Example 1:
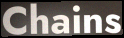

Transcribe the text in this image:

Chains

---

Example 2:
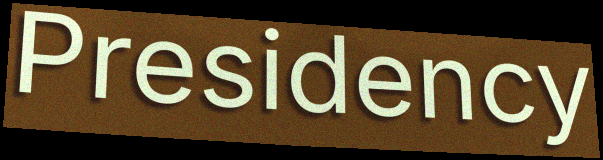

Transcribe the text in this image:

Presidency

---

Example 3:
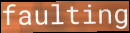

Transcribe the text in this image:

faulting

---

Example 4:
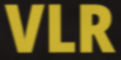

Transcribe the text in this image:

VLR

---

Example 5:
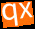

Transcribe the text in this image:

qx